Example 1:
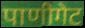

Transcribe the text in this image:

पाणीगेट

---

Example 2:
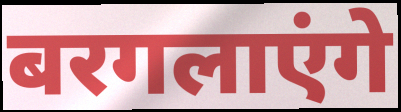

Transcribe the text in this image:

बरगलाएंगे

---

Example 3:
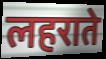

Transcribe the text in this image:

लहराते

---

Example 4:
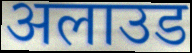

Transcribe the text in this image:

अलाउड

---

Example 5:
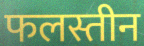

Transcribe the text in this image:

फलस्तीन